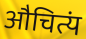
औचित्यं